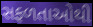
સફળતાઓથી